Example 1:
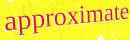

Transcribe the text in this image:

approximate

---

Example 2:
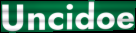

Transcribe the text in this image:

Uncidoe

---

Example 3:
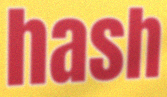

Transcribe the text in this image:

hash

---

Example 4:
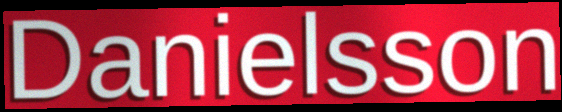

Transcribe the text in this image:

Danielsson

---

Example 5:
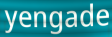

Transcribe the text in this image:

yengade